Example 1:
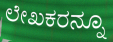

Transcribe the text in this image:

ಲೇಖಕರನ್ನೂ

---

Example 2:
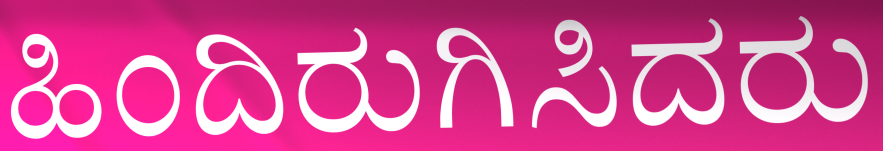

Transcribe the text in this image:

ಹಿಂದಿರುಗಿಸಿದರು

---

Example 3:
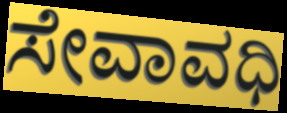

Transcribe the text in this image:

ಸೇವಾವಧಿ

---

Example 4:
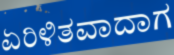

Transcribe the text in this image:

ಏರಿಳಿತವಾದಾಗ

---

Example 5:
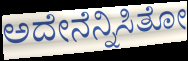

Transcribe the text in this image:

ಅದೇನೆನ್ನಿಸಿತೋ